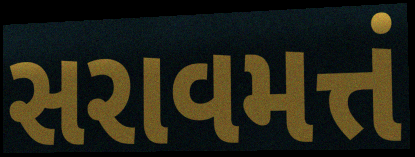
સરાવમત્તં